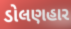
ડોલણહાર